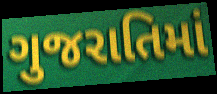
ગુજરાતિમાં